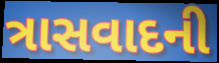
ત્રાસવાદની